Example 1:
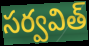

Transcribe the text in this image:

సర్వవిత్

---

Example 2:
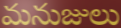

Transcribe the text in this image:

మనుజులు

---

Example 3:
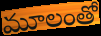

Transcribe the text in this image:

మూలంతో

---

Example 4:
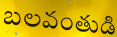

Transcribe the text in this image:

బలవంతుడి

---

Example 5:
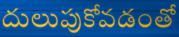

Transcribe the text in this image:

దులుపుకోవడంతో